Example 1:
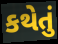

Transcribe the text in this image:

કથેતું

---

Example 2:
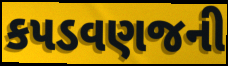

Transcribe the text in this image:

કપડવણજની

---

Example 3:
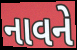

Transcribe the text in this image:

નાવને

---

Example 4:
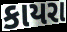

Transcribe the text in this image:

કાયરા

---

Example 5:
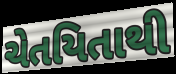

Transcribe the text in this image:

ચેતયિતાથી